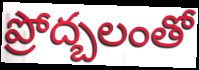
ప్రోద్బలంతో